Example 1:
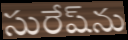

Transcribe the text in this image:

సురేష్‌ను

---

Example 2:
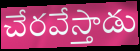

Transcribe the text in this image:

చేరవేస్తాడు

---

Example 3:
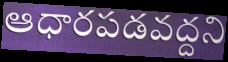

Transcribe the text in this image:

ఆధారపడవద్దని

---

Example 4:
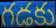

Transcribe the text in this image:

గడకు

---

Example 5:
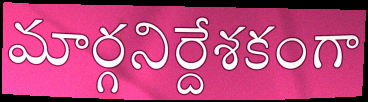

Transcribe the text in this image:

మార్గనిర్దేశకంగా